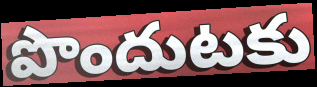
పొందుటకు